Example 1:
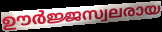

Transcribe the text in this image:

ഊർജ്ജസ്വലരായ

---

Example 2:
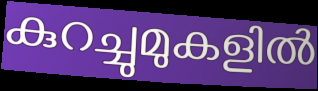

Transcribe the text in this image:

കുറച്ചുമുകളിൽ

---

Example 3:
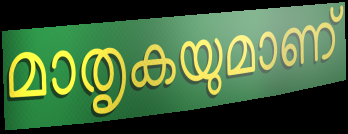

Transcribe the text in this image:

മാതൃകയുമാണ്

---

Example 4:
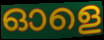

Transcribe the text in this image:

ഓളെ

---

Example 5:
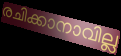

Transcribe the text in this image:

രചിക്കാനാവില്ല